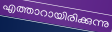
എത്താറായിരിക്കുന്നു